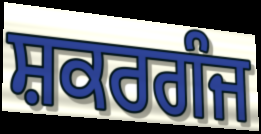
ਸ਼ਕਰਗੰਜ